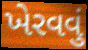
ખેરવવું